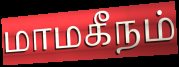
மாமகீநம்